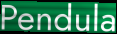
Pendula